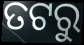
ତଟରୁ